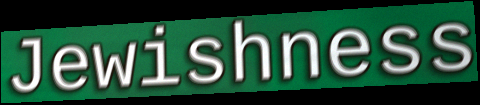
Jewishness